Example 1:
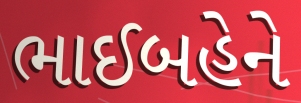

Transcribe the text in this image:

ભાઈબહેને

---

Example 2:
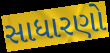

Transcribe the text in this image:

સાધારણો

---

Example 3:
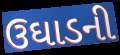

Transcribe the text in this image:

ઉઘાડની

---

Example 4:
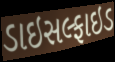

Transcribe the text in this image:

ડાઇસલ્ફાઇડ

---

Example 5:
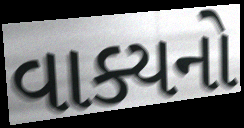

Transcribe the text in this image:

વાક્યનો